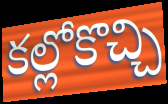
కల్లోకొచ్చి